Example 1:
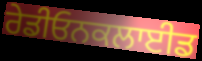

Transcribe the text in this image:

ਰੇਡੀਓਨਕਲਾਈਡ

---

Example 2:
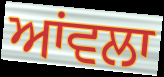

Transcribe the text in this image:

ਆਂਵਲਾ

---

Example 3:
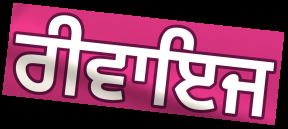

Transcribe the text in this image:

ਰੀਵਾਇਜ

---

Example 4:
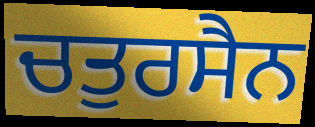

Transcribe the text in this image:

ਚਤੁਰਸੈਨ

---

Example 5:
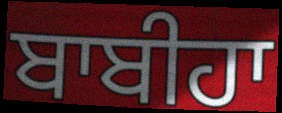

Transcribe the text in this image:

ਬਾਬੀਹਾ